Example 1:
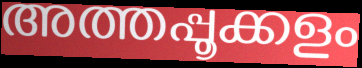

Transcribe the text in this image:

അത്തപ്പൂക്കളം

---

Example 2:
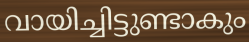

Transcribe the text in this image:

വായിച്ചിട്ടുണ്ടാകും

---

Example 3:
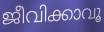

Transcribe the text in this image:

ജീവിക്കാവൂ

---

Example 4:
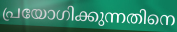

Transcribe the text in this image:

പ്രയോഗിക്കുന്നതിനെ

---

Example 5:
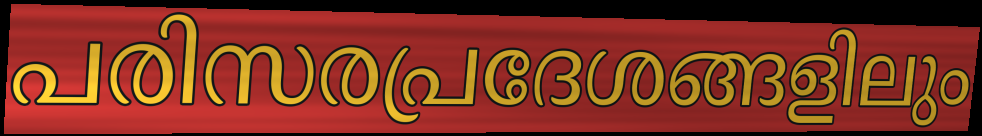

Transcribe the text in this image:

പരിസരപ്രദേശങ്ങളിലും